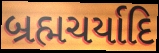
બ્રહ્મચર્યાદિ